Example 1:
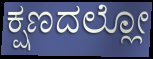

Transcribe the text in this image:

ಕ್ಷಣದಲ್ಲೋ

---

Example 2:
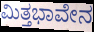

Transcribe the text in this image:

ಮಿತ್ತಭಾವೇನ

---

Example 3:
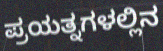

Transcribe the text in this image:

ಪ್ರಯತ್ನಗಳಲ್ಲಿನ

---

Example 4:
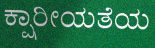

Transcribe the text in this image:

ಕ್ಷಾರೀಯತೆಯ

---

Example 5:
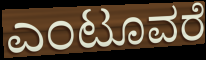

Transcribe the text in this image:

ಎಂಟೂವರೆ